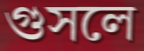
গুসলে